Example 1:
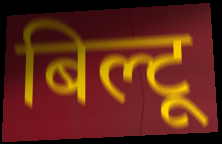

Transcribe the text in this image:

बिल्टू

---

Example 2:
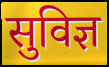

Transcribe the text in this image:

सुविज्ञ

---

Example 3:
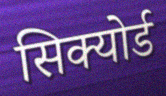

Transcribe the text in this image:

सिक्योर्ड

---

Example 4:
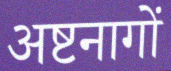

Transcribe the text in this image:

अष्टनागों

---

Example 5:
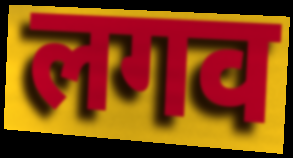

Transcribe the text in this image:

लगव